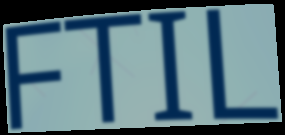
FTIL